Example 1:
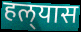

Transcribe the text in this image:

हल्यास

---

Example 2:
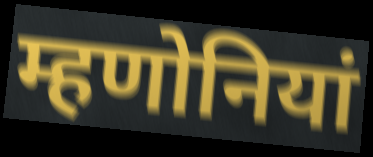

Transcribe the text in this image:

म्हणोनियां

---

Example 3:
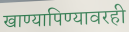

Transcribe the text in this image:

खाण्यापिण्यावरही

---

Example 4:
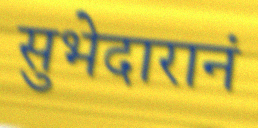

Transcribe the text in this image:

सुभेदारानं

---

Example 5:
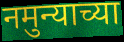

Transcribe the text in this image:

नमुन्याच्या